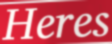
Heres